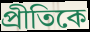
প্রীতিকে